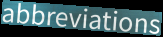
abbreviations